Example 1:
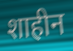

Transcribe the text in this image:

शाहीन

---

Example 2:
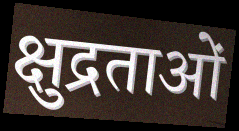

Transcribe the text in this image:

क्षुद्रताओं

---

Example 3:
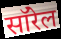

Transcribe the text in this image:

सॉरेल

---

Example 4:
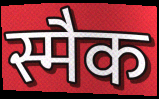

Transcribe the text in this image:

स्मैक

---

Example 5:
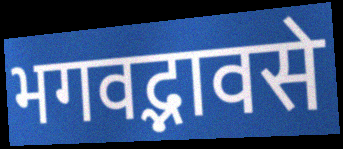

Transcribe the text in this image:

भगवद्भावसे